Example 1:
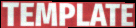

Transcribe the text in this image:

TEMPLATE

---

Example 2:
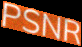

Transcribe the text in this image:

PSNR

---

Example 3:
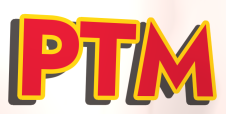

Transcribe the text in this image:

PTM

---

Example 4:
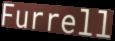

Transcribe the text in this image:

Furrell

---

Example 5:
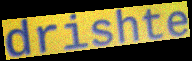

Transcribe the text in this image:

drishte